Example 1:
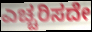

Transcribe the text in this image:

ಎಚ್ಚರಿಸದೇ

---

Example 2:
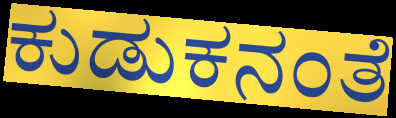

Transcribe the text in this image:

ಕುಡುಕನಂತೆ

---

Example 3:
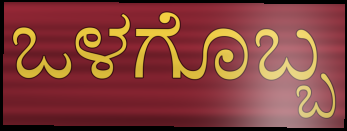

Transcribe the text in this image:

ಒಳಗೊಬ್ಬ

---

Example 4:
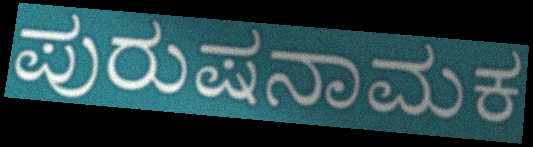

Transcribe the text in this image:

ಪುರುಷನಾಮಕ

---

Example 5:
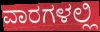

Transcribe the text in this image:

ವಾರಗಳಲ್ಲಿ